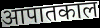
आपातकाल